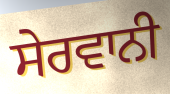
ਸੇਰਵਾਨੀ